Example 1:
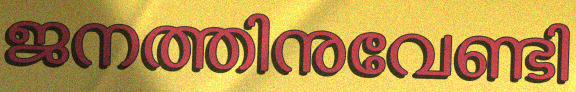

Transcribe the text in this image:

ജനത്തിനുവേണ്ടി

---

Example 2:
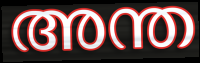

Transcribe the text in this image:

അന്ത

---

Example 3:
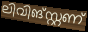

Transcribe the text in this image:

ലിവിങ്സ്റ്റണ്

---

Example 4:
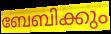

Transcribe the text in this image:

ബേബിക്കും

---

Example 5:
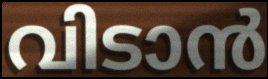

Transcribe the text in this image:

വിടാൻ